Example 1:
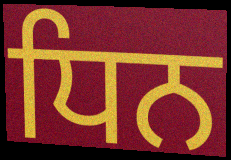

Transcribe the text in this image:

ਧਿਨ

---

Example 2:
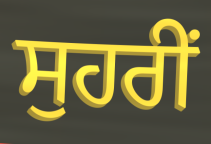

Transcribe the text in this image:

ਸੁਹਰੀਂ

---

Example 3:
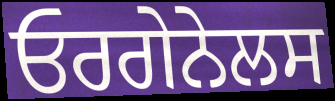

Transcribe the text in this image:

ਓਰਗੇਨੇਲਸ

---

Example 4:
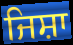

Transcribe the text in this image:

ਜਿਸ਼ਾ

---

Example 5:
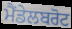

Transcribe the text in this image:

ਮੈਂਡੇਲਬਰੋਟ